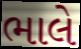
ભાલે